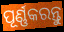
ପୂର୍ଣ୍ଣକରନ୍ତୁ